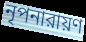
নৃপনারায়ণ